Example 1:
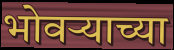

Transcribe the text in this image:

भोवऱ्याच्या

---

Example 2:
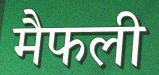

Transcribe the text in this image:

मैफली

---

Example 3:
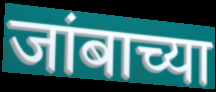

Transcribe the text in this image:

जांबाच्या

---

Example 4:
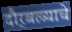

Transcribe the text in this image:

दौर्बल्याचे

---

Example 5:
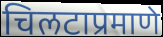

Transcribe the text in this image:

चिलटाप्रमाणे